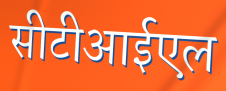
सीटीआईएल